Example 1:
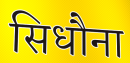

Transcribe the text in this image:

सिधौना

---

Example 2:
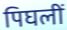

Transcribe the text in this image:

पिघलीं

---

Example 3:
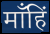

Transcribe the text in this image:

माँहिं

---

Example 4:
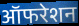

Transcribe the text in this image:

ऑफरेशन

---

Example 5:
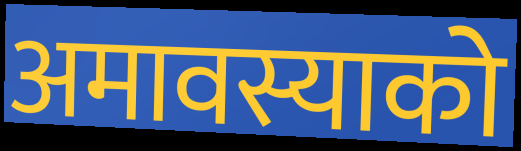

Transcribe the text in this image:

अमावस्याको